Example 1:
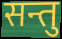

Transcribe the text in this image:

सन्‍तु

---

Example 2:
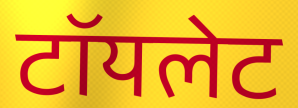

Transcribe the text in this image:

टॉयलेट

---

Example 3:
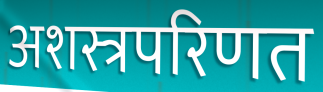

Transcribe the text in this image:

अशस्त्रपरिणत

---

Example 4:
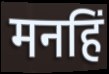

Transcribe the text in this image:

मनहिं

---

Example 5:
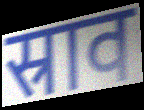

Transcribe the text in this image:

स्राव